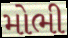
મોભી